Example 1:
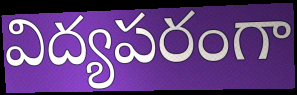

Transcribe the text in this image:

విద్యపరంగా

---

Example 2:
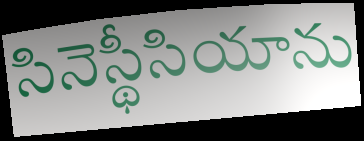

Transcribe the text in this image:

సినెస్థీసియాను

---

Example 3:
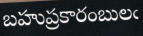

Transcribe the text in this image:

బహుప్రకారంబులఁ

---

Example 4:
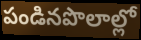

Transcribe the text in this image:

పండినపొలాల్లో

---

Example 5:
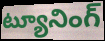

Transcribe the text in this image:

ట్యూనింగ్